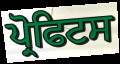
ਪ੍ਰੋਫਿਟਸ